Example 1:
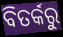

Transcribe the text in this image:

ବିତର୍କରୁ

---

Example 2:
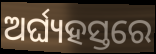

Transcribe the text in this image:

ଅର୍ଘ୍ୟହସ୍ତରେ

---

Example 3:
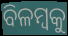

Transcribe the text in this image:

ବିଳମ୍ୱକୁ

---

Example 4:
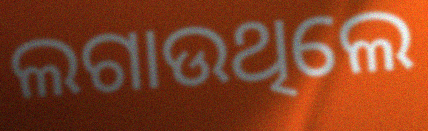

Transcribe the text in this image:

ଲଗାଉଥିଲେ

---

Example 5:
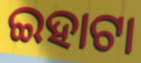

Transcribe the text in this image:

ଇହାଟା